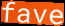
fave